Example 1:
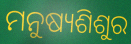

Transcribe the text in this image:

ମନୁଷ୍ୟଶିଶୁର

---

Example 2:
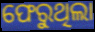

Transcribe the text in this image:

ଫେରୁଥିଲା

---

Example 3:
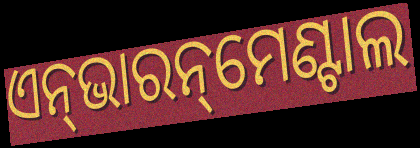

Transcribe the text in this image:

ଏନ୍‌ଭାରନ୍‌ମେଣ୍ଟାଲ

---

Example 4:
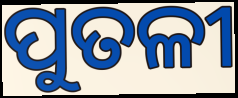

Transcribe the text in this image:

ପୁତଳୀ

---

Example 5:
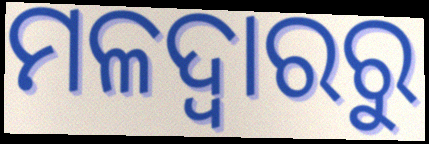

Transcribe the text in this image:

ମଳଦ୍ୱାରରୁ